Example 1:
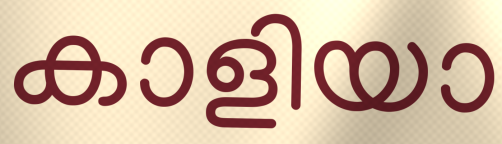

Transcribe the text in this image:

കാളിയാ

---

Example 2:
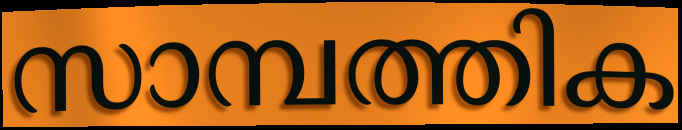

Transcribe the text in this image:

സാമ്പത്തിക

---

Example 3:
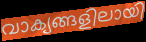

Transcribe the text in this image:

വാക്യങ്ങളിലായി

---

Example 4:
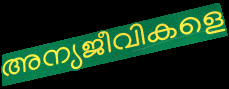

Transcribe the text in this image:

അന്യജീവികളെ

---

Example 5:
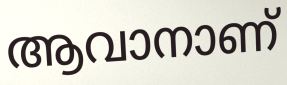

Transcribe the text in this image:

ആവാനാണ്